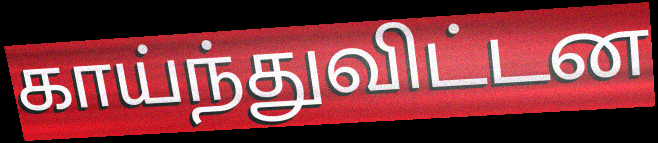
காய்ந்துவிட்டன